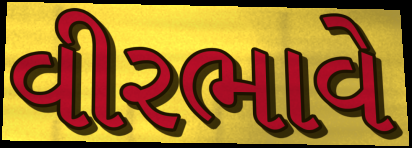
વીરભાવે